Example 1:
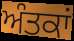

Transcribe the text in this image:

ਅੰਤਕਾਂ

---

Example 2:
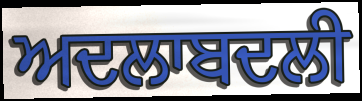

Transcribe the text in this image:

ਅਦਲਾਬਦਲੀ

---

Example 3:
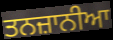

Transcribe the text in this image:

ਤਨਜ਼ਾਨੀਆ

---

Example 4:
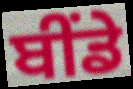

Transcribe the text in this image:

ਬੀਂਡੇ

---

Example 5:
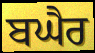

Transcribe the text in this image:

ਬਘੈਰ